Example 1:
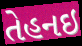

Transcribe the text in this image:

તેહનઇ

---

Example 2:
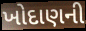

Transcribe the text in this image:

ખોદાણની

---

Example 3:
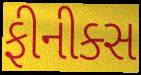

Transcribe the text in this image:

ફીનીક્સ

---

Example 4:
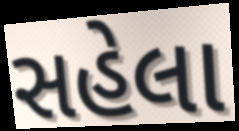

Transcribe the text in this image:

સહેલા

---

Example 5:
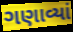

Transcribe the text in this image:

ગણાવ્યાં